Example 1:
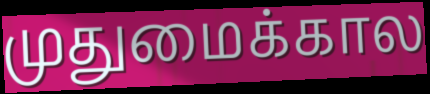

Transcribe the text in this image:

முதுமைக்கால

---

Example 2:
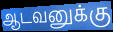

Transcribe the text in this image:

ஆடவனுக்கு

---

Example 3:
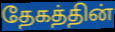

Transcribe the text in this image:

தேகத்தின்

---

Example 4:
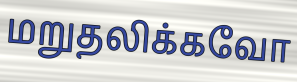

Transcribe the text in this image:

மறுதலிக்கவோ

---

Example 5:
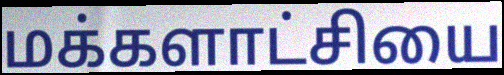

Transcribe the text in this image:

மக்களாட்சியை